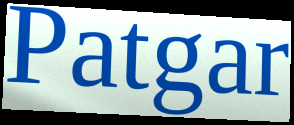
Patgar